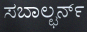
ಸಬಾಲ್ಟರ್ನ್